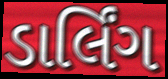
ડાર્લિંગ